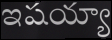
ఇషయ్యా